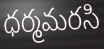
ధర్మమరసి